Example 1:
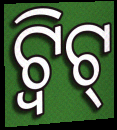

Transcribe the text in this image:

ଟ୍ୱିଟ୍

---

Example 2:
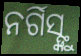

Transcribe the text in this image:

ନର୍ଗିସ୍ଙ୍କୁ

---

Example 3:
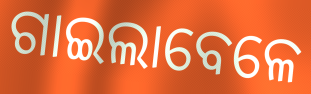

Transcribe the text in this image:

ଗାଇଲାବେଳେ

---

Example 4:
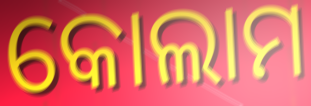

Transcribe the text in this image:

କୋଲାମ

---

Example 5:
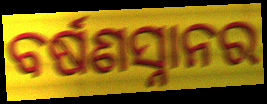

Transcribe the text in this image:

ବର୍ଷଣସ୍ନାନର